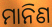
ମାନିଣ